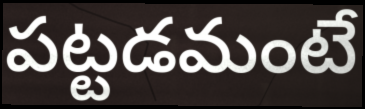
పట్టడమంటే